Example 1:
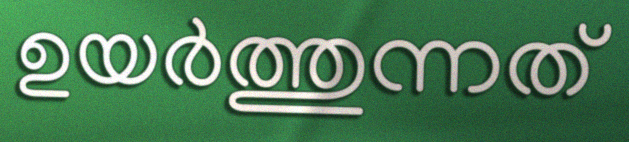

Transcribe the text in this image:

ഉയർത്തുന്നത്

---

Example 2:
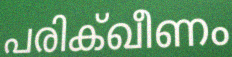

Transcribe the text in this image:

പരിക്ഖീണം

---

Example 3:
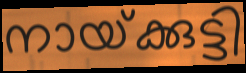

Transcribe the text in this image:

നായ്‌ക്കുട്ടി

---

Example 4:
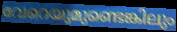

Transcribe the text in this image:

വേറെയുമുണ്ടെങ്കിലും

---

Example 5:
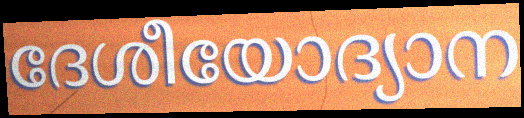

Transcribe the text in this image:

ദേശീയോദ്യാന